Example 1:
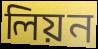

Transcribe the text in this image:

লিয়ন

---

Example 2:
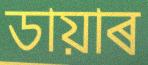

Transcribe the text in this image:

ডায়াৰ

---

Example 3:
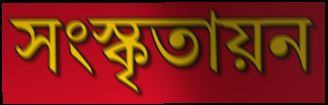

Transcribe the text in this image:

সংস্কৃতায়ন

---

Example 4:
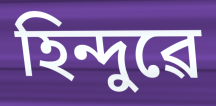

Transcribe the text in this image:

হিন্দুৱে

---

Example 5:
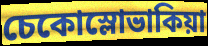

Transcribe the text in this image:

চেকোস্লোভাকিয়া